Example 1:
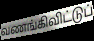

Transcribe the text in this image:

வணங்கிவிட்டுப்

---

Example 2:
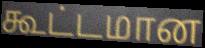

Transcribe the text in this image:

கூட்டமான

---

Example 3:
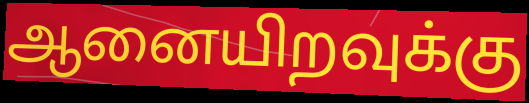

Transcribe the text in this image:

ஆனையிறவுக்கு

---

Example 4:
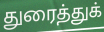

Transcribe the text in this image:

துரைத்துக்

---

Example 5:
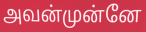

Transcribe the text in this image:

அவன்முன்னே